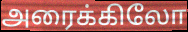
அரைக்கிலோ